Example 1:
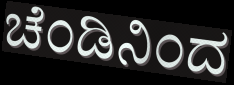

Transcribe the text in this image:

ಚೆಂಡಿನಿಂದ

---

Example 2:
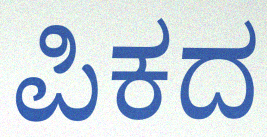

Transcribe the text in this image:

ಪಿಕದ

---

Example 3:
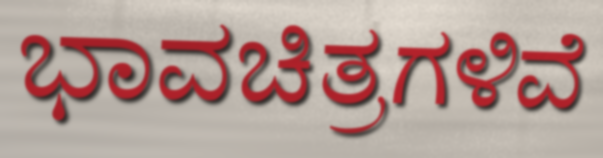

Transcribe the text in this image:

ಭಾವಚಿತ್ರಗಳಿವೆ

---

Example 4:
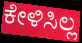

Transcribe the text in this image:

ಕೇಳಿಸಿಲ್ಲ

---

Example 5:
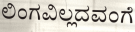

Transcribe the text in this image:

ಲಿಂಗವಿಲ್ಲದವಂಗೆ